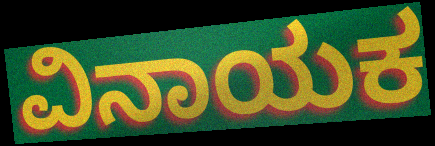
ವಿನಾಯಕ